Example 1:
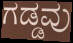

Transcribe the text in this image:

ಗಡ್ಡವು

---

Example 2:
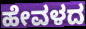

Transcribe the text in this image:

ಹೇವಳದ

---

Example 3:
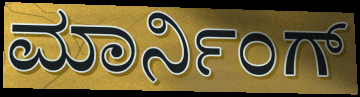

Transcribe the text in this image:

ಮಾರ್ನಿಂಗ್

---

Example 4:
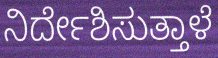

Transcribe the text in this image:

ನಿರ್ದೇಶಿಸುತ್ತಾಳೆ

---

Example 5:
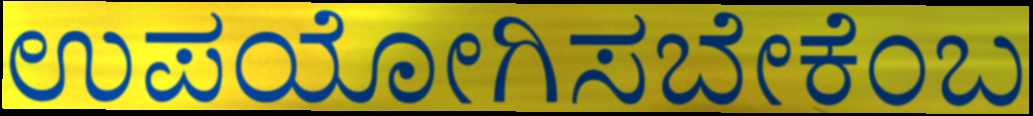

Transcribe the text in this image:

ಉಪಯೋಗಿಸಬೇಕೆಂಬ